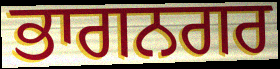
ਭਾਗਨਗਰ